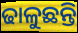
ଢାଳୁଛନ୍ତି